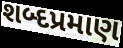
શબ્દપ્રમાણ